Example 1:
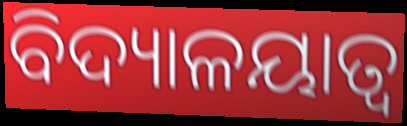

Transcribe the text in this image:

ବିଦ୍ୟାଳୟାତ୍ବ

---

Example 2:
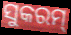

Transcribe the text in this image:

ସୁକରମ୍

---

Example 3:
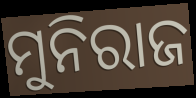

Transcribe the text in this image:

ମୁନିରାଜ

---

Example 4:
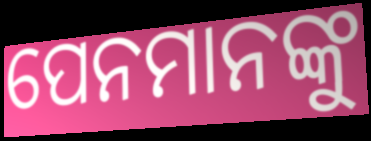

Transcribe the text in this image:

ପେନମାନଙ୍କୁ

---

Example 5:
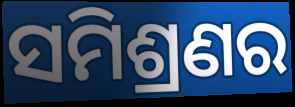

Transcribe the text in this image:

ସମିଶ୍ରଣର